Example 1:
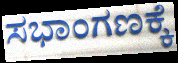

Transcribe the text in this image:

ಸಭಾಂಗಣಕ್ಕೆ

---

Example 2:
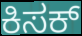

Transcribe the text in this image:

ಕಿಸಕ್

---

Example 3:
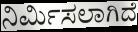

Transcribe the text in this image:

ನಿರ್ಮಿಸಲಾಗಿದೆ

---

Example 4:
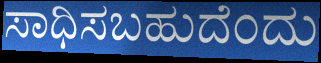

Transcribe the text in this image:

ಸಾಧಿಸಬಹುದೆಂದು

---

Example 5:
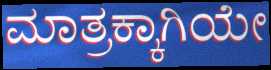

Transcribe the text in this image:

ಮಾತ್ರಕ್ಕಾಗಿಯೇ